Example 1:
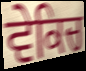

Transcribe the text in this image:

ਵੇਕਿਚ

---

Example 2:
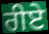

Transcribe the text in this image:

ਰੀਏ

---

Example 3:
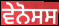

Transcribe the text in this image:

ਵੇਨੋਸਸ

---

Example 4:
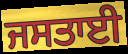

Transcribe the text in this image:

ਜਸਤਾਈ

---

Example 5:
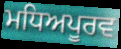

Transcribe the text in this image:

ਮਧਿਅਪੂਰਵ